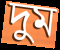
দুম